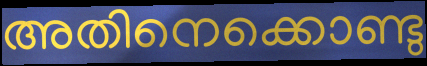
അതിനെക്കൊണ്ടു